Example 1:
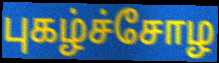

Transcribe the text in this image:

புகழ்ச்சோழ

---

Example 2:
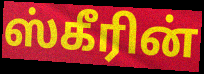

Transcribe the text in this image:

ஸ்கீரின்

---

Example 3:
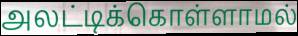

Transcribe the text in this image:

அலட்டிக்கொள்ளாமல்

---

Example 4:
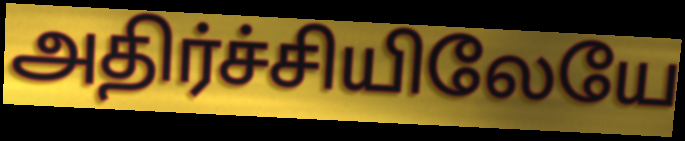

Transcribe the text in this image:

அதிர்ச்சியிலேயே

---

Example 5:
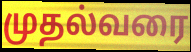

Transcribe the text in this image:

முதல்வரை